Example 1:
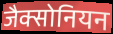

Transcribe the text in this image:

जैक्सोनियन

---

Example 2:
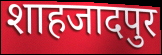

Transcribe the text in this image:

शाहजादपुर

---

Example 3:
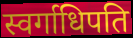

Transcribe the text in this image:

स्वर्गाधिपति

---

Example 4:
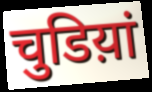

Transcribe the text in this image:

चुडिय़ां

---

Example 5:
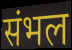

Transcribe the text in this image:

संभल